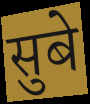
सुबे